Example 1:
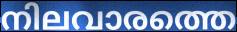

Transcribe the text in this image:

നിലവാരത്തെ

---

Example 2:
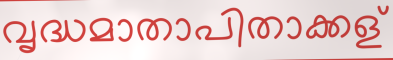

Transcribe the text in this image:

വൃദ്ധമാതാപിതാക്കള്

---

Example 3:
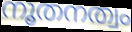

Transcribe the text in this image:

നൂതനത്വം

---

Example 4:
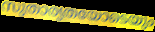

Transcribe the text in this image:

സുതാര്യതയോടെയും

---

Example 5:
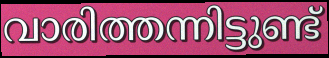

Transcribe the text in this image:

വാരിത്തന്നിട്ടുണ്ട്